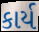
કાર્ય